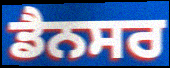
ਡੈਨਸਰ